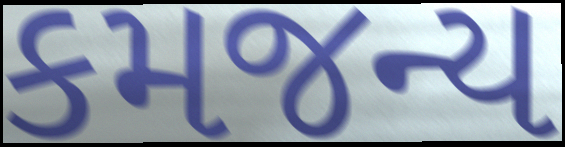
કમજન્ય